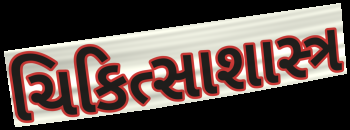
ચિકિત્સાશાસ્ત્ર